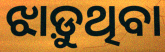
ଝାଡ଼ୁଥିବା